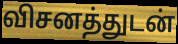
விசனத்துடன்